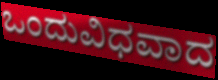
ಒಂದುವಿಧವಾದ